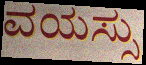
ವಯಸ್ಸು